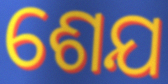
ଶେଯ